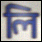
লি